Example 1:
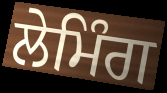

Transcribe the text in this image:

ਲੇਮਿੰਗ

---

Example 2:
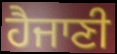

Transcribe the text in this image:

ਹੈਜਾਣੀ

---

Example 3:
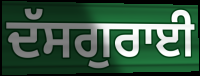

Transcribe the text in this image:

ਦੱਸਗੁਰਾਈ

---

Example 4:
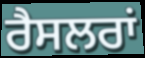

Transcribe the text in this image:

ਰੈਸਲਰਾਂ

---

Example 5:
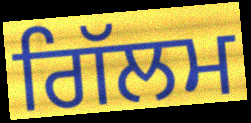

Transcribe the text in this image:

ਗਿੱਲਮ